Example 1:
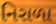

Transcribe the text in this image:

નિરાળા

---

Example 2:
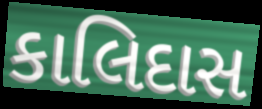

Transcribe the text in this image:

કાલિદાસ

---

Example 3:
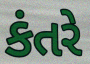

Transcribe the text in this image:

કંતરે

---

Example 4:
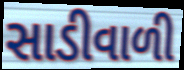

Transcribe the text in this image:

સાડીવાળી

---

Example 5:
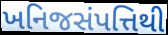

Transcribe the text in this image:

ખનિજસંપત્તિથી